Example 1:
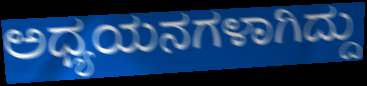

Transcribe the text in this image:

ಅಧ್ಯಯನಗಳಾಗಿದ್ದು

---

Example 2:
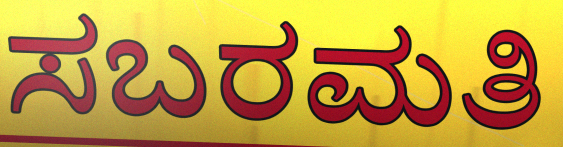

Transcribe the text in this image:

ಸಬರಮತಿ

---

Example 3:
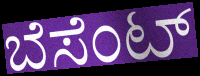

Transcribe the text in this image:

ಬೆಸೆಂಟ್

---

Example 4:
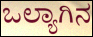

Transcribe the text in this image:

ಒಲ್ಯಾಗಿನ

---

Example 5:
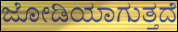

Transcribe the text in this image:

ಜೋಡಿಯಾಗುತ್ತದೆ